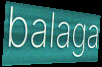
balaga